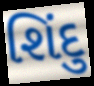
શિંદુ